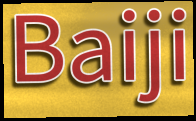
Baiji